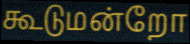
கூடுமன்றோ